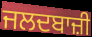
ਜਲਦਬਾਜ਼ੀ